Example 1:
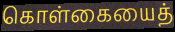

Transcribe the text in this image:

கொள்கையைத்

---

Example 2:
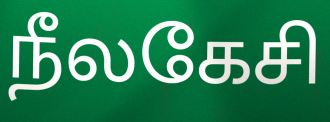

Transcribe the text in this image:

நீலகேசி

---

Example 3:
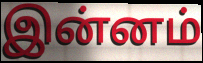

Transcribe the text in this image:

இன்னம்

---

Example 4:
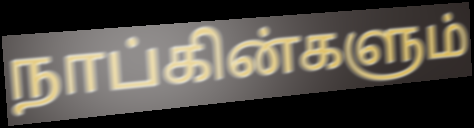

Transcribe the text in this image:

நாப்கின்களும்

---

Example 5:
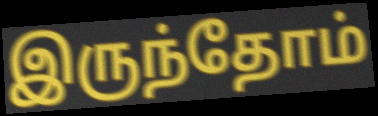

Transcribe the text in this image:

இருந்தோம்